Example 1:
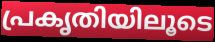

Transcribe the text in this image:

പ്രകൃതിയിലൂടെ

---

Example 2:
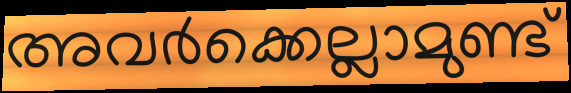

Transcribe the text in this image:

അവർക്കെല്ലാമുണ്ട്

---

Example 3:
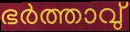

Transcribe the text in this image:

ഭർത്താവു്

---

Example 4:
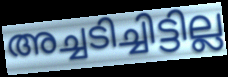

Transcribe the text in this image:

അച്ചടിച്ചിട്ടില്ല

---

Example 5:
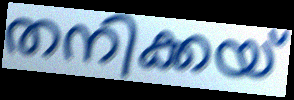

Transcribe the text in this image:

തനിക്കയ്